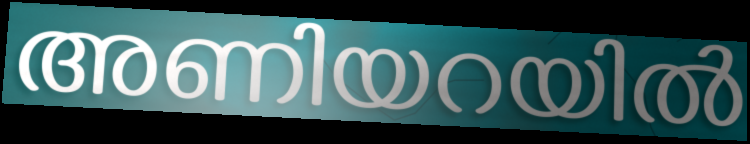
അണിയറയിൽ